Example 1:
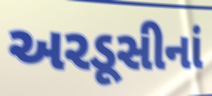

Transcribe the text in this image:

અરડૂસીનાં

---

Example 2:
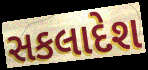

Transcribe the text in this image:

સકલાદેશ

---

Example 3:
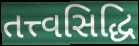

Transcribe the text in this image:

તત્ત્વસિદ્ધિ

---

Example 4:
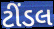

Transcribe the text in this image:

ટીંડલ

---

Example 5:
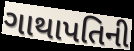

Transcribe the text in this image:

ગાથાપતિની